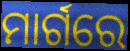
ମାର୍ଗରେ